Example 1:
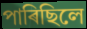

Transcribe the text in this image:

পাৰিছিলে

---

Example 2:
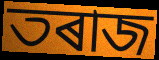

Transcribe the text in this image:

তৰাজ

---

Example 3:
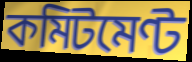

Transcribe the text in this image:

কমিটমেণ্ট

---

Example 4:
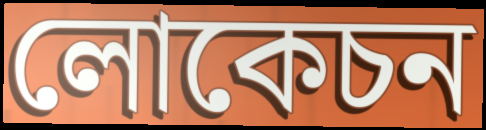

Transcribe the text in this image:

লোকেচন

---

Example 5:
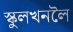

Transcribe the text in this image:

স্কুলখনলৈ